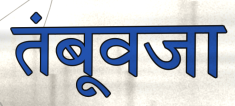
तंबूवजा